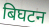
बिघटन